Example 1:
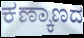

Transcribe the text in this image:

ಕಣ್ಕಾಣದ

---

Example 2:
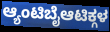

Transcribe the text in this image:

ಆ್ಯಂಟಿಬೈಆಟಿಕ್ಗಳ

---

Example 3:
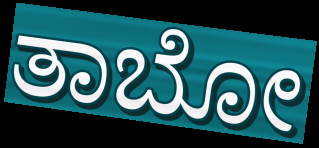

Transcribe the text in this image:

ತಾಬೋ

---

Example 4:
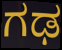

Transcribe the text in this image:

ಗಢ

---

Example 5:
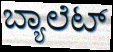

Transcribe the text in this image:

ಬ್ಯಾಲೆಟ್